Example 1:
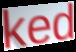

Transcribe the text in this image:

ked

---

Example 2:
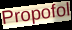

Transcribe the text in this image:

Propofol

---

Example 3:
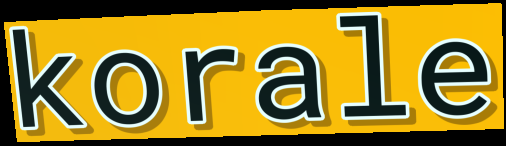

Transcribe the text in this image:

korale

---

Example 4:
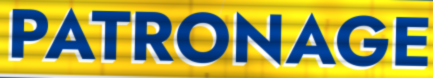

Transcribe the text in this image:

PATRONAGE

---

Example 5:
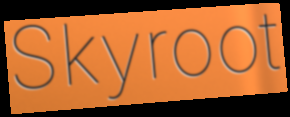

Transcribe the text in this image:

Skyroot